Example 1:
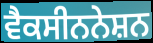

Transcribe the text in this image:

ਵੈਕਸੀਨਨੇਸ਼ਨ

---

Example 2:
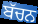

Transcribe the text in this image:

ਬੱਚਨ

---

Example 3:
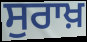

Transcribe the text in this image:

ਸੁਰਾਖ਼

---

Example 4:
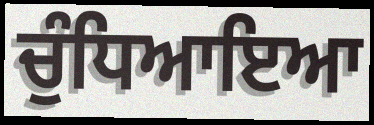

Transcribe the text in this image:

ਚੁੰਧਿਆਇਆ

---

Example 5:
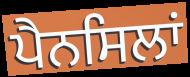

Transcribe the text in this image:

ਪੈਨਸਿਲਾਂ